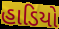
હાડિયો